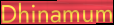
Dhinamum